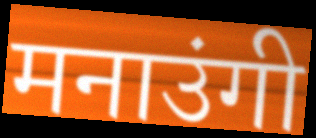
मनाउंगी